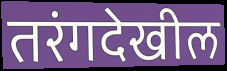
तरंगदेखील